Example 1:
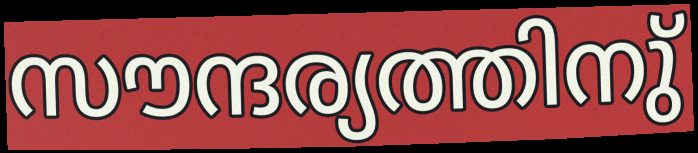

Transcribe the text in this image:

സൗന്ദര്യത്തിനു്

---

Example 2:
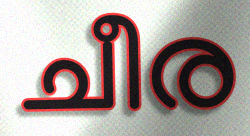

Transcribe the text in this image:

ചീര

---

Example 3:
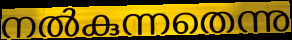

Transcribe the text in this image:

നൽകുന്നതെന്നു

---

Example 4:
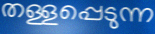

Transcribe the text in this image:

തള്ളപ്പെടുന്ന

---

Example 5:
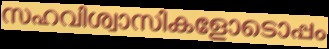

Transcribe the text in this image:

സഹവിശ്വാസികളോടൊപ്പം